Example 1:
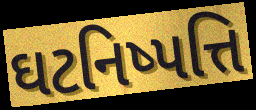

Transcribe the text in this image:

ઘટનિષ્પત્તિ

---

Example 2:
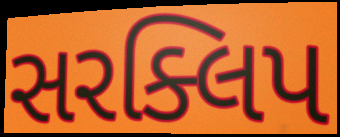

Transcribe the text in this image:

સરક્લિપ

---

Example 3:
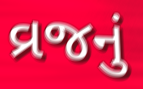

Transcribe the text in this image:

વ્રજનું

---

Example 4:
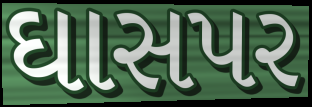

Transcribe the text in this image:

ઘાસપર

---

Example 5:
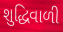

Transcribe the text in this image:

શુદ્ધિવાળી